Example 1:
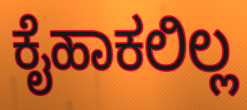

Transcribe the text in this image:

ಕೈಹಾಕಲಿಲ್ಲ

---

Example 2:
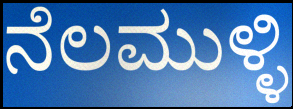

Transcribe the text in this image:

ನೆಲಮುಳ್ಳಿ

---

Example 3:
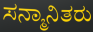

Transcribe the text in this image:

ಸನ್ಮಾನಿತರು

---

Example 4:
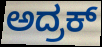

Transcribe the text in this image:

ಅದ್ರಕ್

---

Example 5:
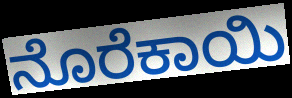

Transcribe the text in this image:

ನೊರೆಕಾಯಿ